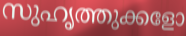
സുഹൃത്തുക്കളോ